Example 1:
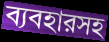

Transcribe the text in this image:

ব্যবহারসহ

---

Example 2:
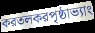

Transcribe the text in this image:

করতলকরপৃষ্ঠাভ্যাং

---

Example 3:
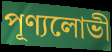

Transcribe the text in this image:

পূণ্যলোভী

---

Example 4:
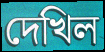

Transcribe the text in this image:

দেখিল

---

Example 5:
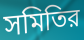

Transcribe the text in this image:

সমিতির